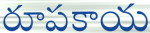
రూపకాయ